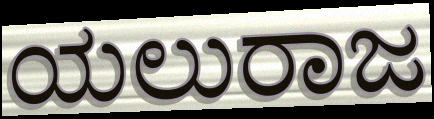
ಯಲುರಾಜ